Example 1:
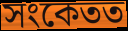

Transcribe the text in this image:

সংকেতত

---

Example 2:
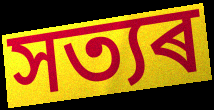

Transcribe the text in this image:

সত্যৰ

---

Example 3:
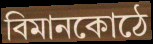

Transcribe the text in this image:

বিমানকোঠে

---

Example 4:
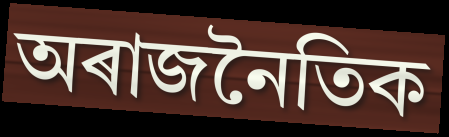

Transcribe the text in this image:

অৰাজনৈতিক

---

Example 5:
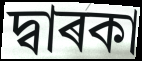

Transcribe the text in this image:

দ্বাৰকা